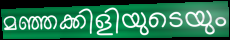
മഞ്ഞക്കിളിയുടെയും